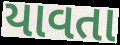
યાવતા